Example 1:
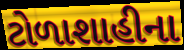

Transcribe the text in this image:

ટોળાશાહીના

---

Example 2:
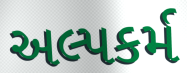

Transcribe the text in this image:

અલ્પકર્મ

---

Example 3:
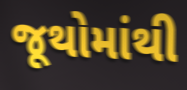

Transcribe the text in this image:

જૂથોમાંથી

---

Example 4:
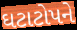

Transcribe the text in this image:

ઘટાટોપને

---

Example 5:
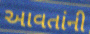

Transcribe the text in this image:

આવતાંની